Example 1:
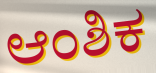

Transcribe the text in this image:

ಆಂಶಿಕ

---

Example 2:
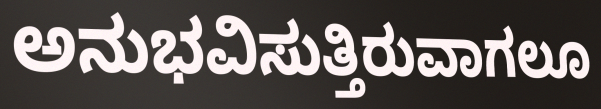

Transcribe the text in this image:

ಅನುಭವಿಸುತ್ತಿರುವಾಗಲೂ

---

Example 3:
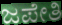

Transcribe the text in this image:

ಜಪೇತಿ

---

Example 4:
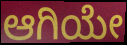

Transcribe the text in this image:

ಆಗಿಯೇ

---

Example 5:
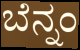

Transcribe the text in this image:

ಬೆನ್ನಂ